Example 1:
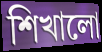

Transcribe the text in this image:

শিখালো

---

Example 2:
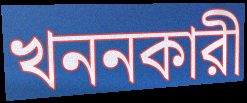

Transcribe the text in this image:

খননকারী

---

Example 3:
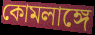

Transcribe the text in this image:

কোমলাঙ্গে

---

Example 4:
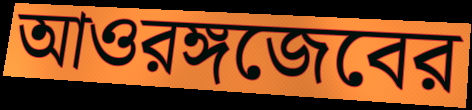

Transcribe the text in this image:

আওরঙ্গজেবের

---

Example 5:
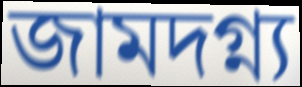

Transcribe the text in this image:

জামদগ্ন্য